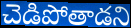
చెడిపోతాడని